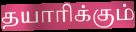
தயாரிக்கும்